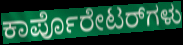
ಕಾರ್ಪೊರೇಟರ್‌ಗಳು